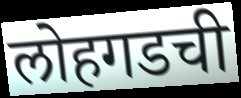
लोहगडची